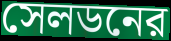
সেলডনের